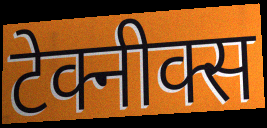
टेक्नीक्स